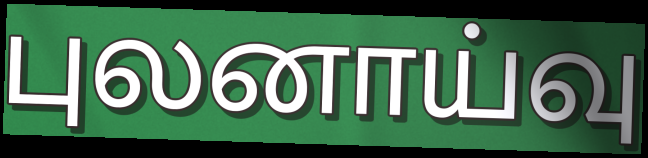
புலனாய்வு